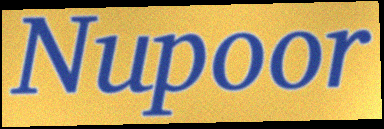
Nupoor